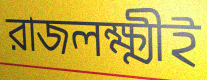
রাজলক্ষ্মীই